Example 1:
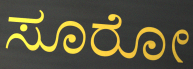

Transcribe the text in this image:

ಸೂರೋ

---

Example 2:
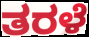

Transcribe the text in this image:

ತರಳೆ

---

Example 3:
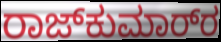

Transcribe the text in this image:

ರಾಜ್‌ಕುಮಾರ್‌ರ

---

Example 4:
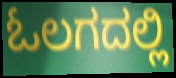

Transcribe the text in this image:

ಓಲಗದಲ್ಲಿ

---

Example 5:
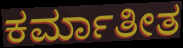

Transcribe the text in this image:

ಕರ್ಮಾತೀತ